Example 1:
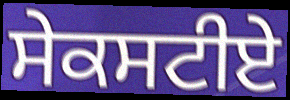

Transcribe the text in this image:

ਸੇਕਸਟੀਏ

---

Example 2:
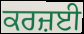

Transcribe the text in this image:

ਕਰਜ਼ਈ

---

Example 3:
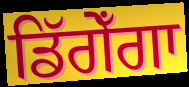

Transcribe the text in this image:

ਡਿੱਗੇਁਗਾ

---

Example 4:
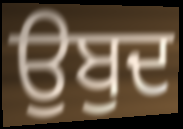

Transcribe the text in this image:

ਉਬੁਦ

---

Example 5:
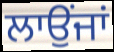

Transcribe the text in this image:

ਲਾਉਂਜਾਂ